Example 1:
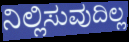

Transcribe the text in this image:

ನಿಲ್ಲಿಸುವುದಿಲ್ಲ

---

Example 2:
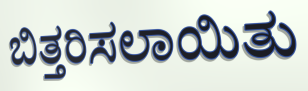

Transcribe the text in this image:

ಬಿತ್ತರಿಸಲಾಯಿತು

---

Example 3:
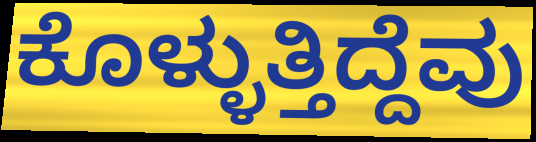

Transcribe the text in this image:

ಕೊಳ್ಳುತ್ತಿದ್ದೆವು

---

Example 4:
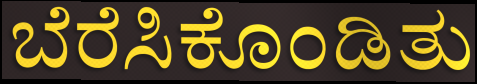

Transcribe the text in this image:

ಬೆರೆಸಿಕೊಂಡಿತು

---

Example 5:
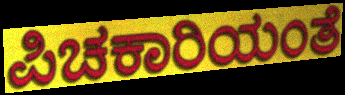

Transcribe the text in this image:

ಪಿಚಕಾರಿಯಂತೆ